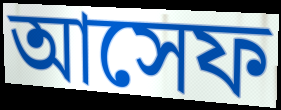
আসেফ